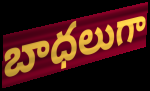
బాధలుగా